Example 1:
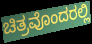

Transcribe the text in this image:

ಚಿತ್ರವೊಂದರಲ್ಲಿ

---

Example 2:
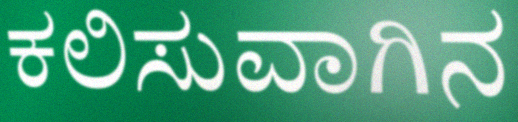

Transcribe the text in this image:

ಕಲಿಸುವಾಗಿನ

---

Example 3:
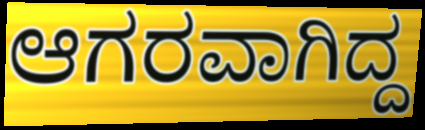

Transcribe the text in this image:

ಆಗರವಾಗಿದ್ದ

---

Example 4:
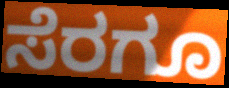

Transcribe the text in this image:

ಸೆರಗೂ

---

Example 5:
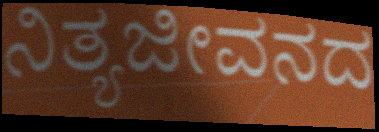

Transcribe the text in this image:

ನಿತ್ಯಜೀವನದ